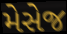
મેસેજ